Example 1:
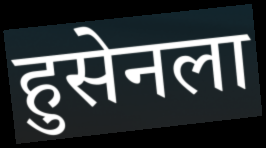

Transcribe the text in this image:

हुसेनला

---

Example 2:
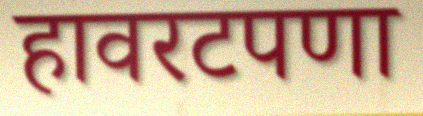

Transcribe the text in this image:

हावरटपणा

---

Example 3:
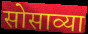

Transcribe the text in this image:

सोसाव्या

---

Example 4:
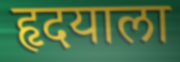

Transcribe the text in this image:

हृदयाला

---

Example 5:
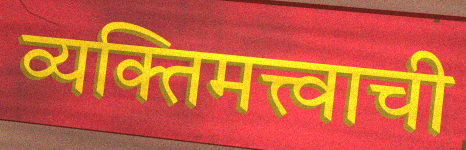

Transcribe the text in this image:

व्यक्तिमत्त्वाची